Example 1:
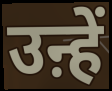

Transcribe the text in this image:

उऩ्हें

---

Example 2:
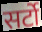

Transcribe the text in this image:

सर्टो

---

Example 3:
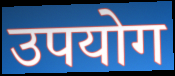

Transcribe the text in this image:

उपयोग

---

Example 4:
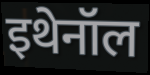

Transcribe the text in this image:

इथेनॉल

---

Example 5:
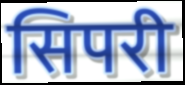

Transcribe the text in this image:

सिपरी